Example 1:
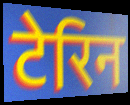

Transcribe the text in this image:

टेरिन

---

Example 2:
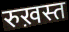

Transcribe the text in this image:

रुख़स्त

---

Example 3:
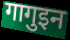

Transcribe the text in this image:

गागुइन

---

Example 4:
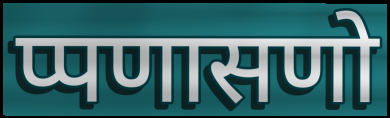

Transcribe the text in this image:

प्पणासणो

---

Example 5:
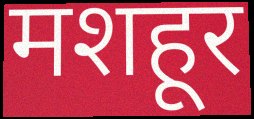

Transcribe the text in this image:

मशहूर